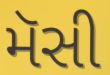
મૅસી